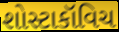
શોસ્ટાકૉવિચ